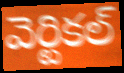
వెర్టికల్